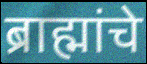
ब्राह्मांचे